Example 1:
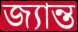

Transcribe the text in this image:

জ্যান্ত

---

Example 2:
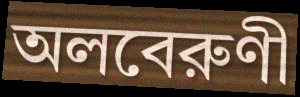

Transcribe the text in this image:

অলবেরুণী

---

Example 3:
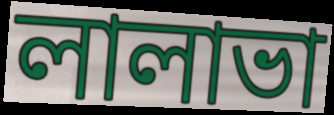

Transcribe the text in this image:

লালাভা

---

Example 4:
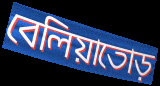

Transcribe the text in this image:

বেলিয়াতোড়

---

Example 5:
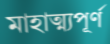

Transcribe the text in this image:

মাহাত্ম্যপূর্ণ